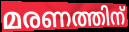
മരണത്തിന്